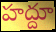
హద్దూ